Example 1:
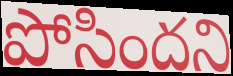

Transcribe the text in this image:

పోసిందని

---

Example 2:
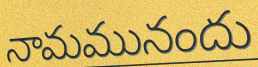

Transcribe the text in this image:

నామమునందు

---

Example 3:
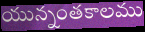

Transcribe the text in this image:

యున్నంతకాలము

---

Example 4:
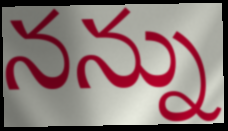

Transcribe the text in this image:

నన్ను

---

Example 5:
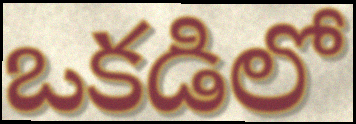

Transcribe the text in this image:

ఒకడిలో